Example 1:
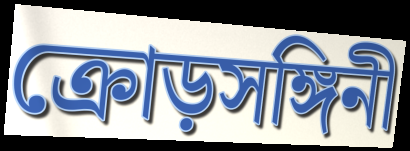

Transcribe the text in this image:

ক্রোড়সঙ্গিনী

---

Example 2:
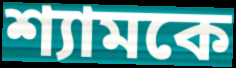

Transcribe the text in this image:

শ্যামকে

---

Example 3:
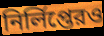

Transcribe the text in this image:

নির্লিপ্তেরও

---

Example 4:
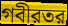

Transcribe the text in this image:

গবীরতর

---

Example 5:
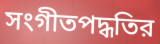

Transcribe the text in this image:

সংগীতপদ্ধতির